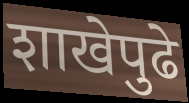
शाखेपुढे